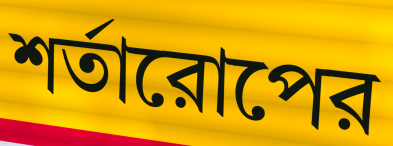
শর্তারোপের